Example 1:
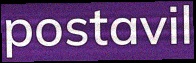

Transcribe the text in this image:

postavil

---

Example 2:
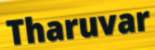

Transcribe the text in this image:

Tharuvar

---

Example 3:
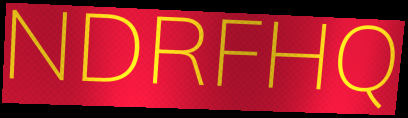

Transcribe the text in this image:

NDRFHQ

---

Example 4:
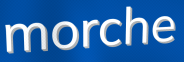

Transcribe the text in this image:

morche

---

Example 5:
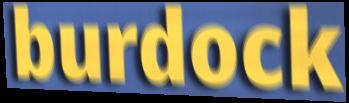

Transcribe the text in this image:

burdock